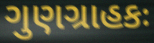
ગુણગ્રાહકઃ